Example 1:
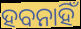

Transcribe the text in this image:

ହବନାହିଁ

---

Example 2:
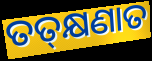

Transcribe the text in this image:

ତତ୍‌କ୍ଷଣାତ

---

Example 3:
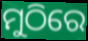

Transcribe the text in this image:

ମୁଠିରେ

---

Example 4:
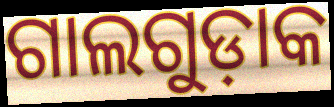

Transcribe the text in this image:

ଗାଲଗୁଡ଼ାକ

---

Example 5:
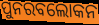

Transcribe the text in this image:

ପୁନରବଲୋକନ